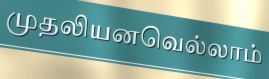
முதலியனவெல்லாம்